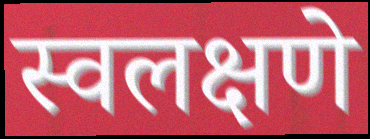
स्वलक्षणे